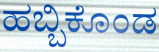
ಹಬ್ಬಿಕೊಂಡ